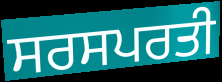
ਸਰਸਪਰਤੀ